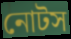
নোটস